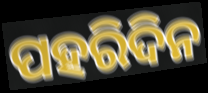
ପହରିଦିନ